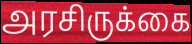
அரசிருக்கை